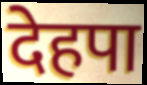
देहपा